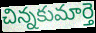
చిన్నకుమార్తె